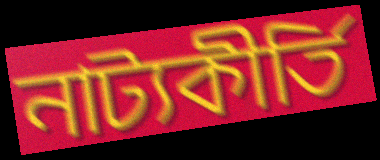
নাট্যকীর্তি